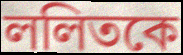
ললিতকে